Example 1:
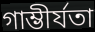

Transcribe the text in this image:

গাম্ভীর্যতা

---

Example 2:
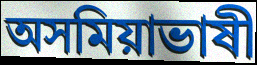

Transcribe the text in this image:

অসমিয়াভাষী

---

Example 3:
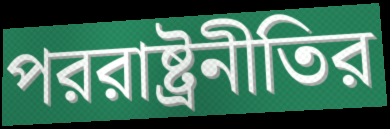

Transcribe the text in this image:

পররাষ্ট্রনীতির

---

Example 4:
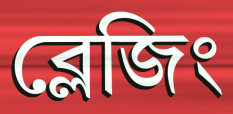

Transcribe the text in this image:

ব্লেজিং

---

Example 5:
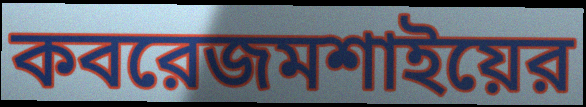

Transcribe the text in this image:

কবরেজমশাইয়ের